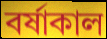
বর্ষাকাল